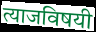
त्याजविषयी